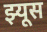
झ्यूस